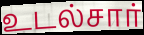
உடல்சார்